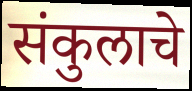
संकुलाचे